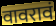
वावरावं